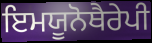
ਇਮਯੂਨੋਥੈਰੇਪੀ